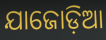
ଯାଜୋଡ଼ିଆ